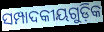
ସମ୍ପାଦକୀୟଗୁଡ଼ିକ